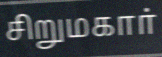
சிறுமகார்